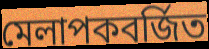
মেলাপকবর্জিত